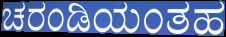
ಚರಂಡಿಯಂತಹ